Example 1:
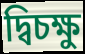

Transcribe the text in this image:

দ্বিচক্ষু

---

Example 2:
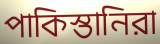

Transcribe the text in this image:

পাকিস্তানিরা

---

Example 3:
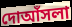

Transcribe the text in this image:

দোআঁসলা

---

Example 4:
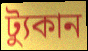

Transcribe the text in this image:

ট্যুকান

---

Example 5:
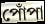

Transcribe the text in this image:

পোঁপা